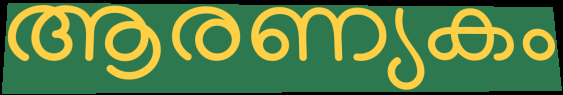
ആരണ്യകം